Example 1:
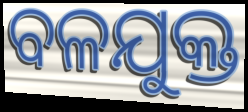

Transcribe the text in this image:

ବଳଯୁକ୍ତ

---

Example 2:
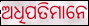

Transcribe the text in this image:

ଅଧିପତିମାନେ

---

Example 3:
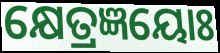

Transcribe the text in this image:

କ୍ଷେତ୍ରଜ୍ଞୟୋଃ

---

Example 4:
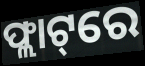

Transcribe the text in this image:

ଫ୍ଲାଟ୍‌ରେ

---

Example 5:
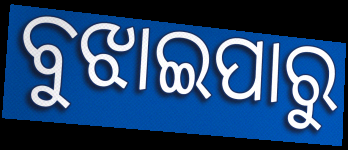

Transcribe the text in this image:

ବୁଝାଇପାରୁ